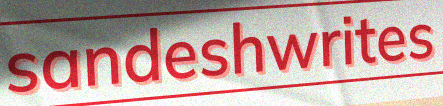
sandeshwrites